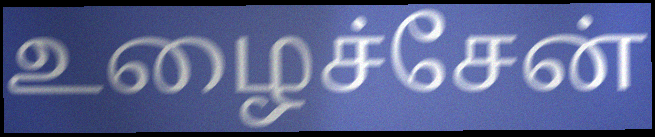
உழைச்சேன்